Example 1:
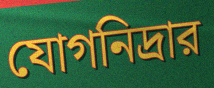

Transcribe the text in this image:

যোগনিদ্রার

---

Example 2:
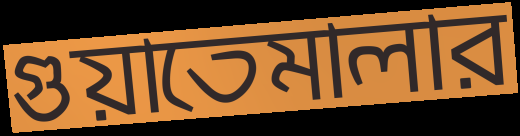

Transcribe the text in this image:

গুয়াতেমালার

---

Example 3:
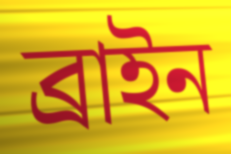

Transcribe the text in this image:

ব্রাইন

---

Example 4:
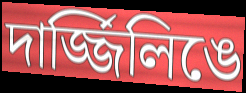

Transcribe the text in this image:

দার্জ্জিলিঙে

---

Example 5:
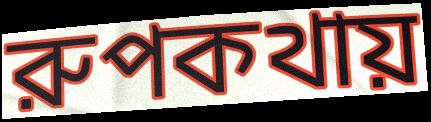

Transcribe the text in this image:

রুপকথায়